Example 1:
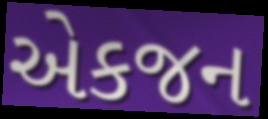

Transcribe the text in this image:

એકજન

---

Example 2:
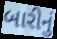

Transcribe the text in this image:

બારીનું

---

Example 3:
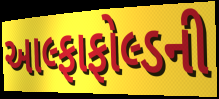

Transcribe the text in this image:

આલ્ફાફોલ્ડની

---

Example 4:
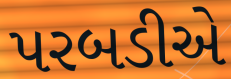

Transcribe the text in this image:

પરબડીએ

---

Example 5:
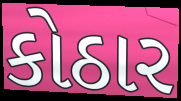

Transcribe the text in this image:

કોઠાર